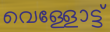
വെള്ളോട്ട്